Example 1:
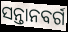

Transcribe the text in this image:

ସନ୍ତାନବର୍ଗ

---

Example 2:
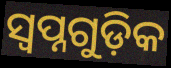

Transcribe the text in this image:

ସ୍ୱପ୍ନଗୁଡ଼ିକ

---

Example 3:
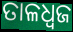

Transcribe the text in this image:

ତାଳଧ୍ୱଜ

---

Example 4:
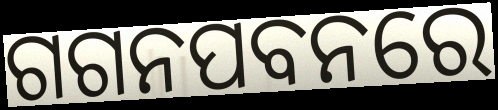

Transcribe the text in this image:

ଗଗନପବନରେ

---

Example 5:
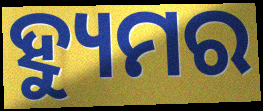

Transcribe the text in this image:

ହ୍ୟୁମର